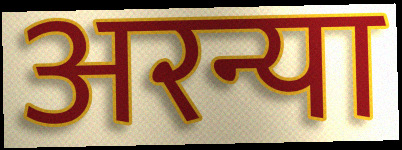
अरन्या